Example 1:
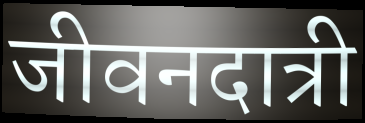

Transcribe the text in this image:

जीवनदात्री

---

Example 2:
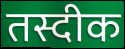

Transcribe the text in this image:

तस्‍दीक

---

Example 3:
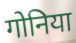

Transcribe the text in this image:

गोनिया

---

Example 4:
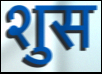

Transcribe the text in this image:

शुस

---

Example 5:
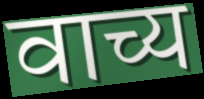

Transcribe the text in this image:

वाच्य